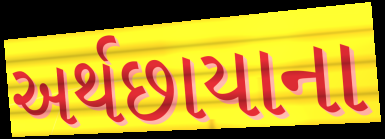
અર્થછાયાના